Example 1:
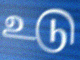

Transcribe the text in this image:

உடு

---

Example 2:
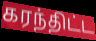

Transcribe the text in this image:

கரந்திட்ட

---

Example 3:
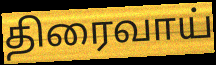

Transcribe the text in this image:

திரைவாய்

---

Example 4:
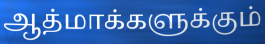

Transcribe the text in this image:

ஆத்மாக்களுக்கும்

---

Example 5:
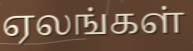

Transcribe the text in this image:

ஏலங்கள்